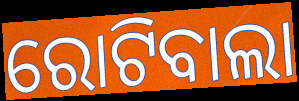
ରୋଟିବାଲା